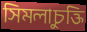
সিমলাচুক্তি